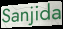
Sanjida